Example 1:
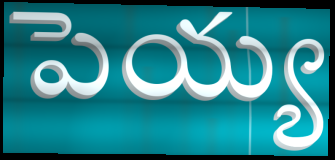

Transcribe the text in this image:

పెయ్య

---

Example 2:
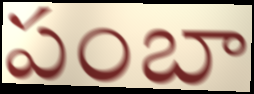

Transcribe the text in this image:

పంబా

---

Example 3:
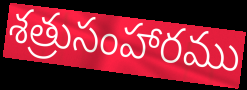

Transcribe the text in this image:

శత్రుసంహారము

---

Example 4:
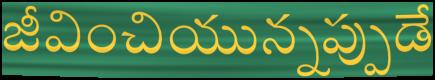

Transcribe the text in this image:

జీవించియున్నప్పుడే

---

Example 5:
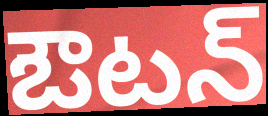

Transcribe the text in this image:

ఔటన్